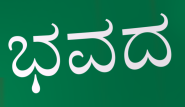
ಭವದ